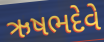
ઋષભદેવે